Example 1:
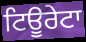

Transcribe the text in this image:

ਟਿਊਰੇਟਾ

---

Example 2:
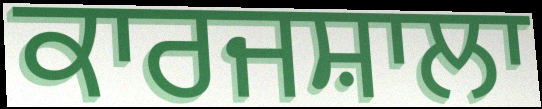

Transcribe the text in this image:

ਕਾਰਜਸ਼ਾਲਾ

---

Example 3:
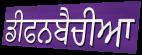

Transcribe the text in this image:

ਡੀਫਨਬੈਚੀਆ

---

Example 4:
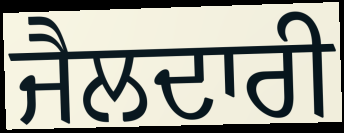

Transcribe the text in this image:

ਜੈਲਦਾਰੀ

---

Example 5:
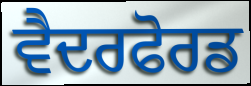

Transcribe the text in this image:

ਵੈਦਰਫੋਰਡ